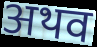
अथव